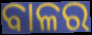
ବାଳର